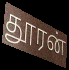
தூரன்